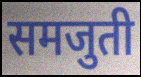
समजुती